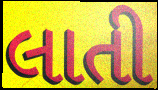
લાતી